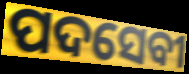
ପଦସେବୀ